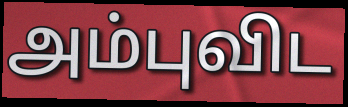
அம்புவிட